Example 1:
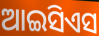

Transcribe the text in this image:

ଆଇସିଏସ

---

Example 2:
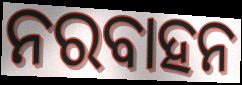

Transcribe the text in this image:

ନରବାହନ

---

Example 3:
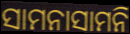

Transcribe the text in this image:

ସାମନାସାମନି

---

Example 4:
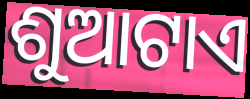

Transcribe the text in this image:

ଶୁଆଟାଏ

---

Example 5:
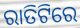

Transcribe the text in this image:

ରାତିଟିରେ